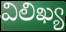
విలిఖ్య